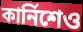
কার্নিশেও